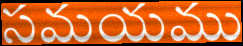
సమయము